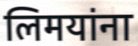
लिमयांना